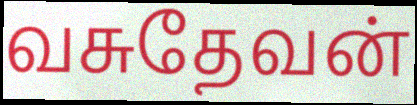
வசுதேவன்